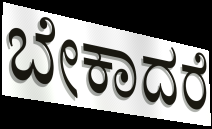
ಬೇಕಾದರೆ